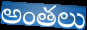
అంతలు